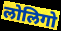
लोलिगो